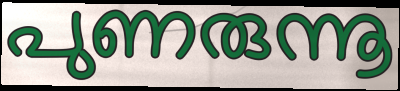
പുണരുന്നൂ